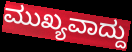
ಮುಖ್ಯವಾದ್ದು